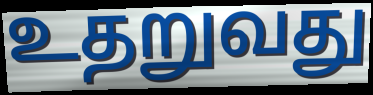
உதறுவது